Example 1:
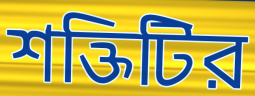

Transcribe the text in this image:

শক্তিটির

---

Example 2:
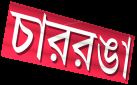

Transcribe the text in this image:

চাররঙা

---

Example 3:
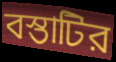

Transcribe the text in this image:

বস্তাটির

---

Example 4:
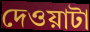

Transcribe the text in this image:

দেওয়াটা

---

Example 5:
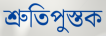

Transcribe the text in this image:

শ্রুতিপুস্তক